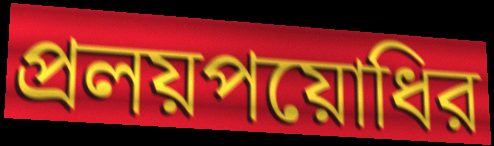
প্রলয়পয়োধির